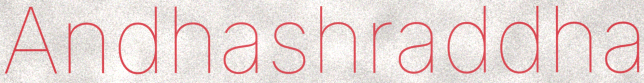
Andhashraddha